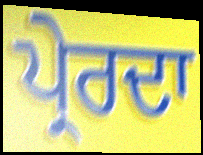
ਪ੍ਰੇਰਦਾ